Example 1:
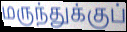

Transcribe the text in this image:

மருந்துக்குப்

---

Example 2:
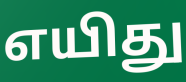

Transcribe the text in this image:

எயிது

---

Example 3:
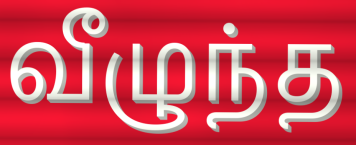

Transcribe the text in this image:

வீழுந்த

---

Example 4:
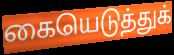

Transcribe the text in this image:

கையெடுத்துக்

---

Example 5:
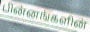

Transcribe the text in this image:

பின்னங்களின்